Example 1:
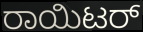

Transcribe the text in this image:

ರಾಯಿಟರ್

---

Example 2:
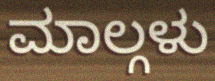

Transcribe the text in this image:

ಮಾಲ್ಗಳು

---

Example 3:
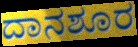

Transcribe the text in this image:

ದಾನಶೂರ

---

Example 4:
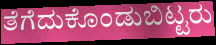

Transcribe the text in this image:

ತೆಗೆದುಕೊಂಡುಬಿಟ್ಟರು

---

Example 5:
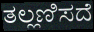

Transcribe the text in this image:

ತಲ್ಲಣಿಸದೆ